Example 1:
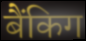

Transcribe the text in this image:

बैंकिग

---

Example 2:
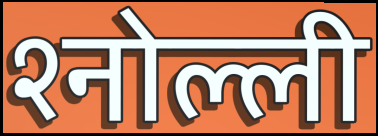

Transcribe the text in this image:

श्नोल्ली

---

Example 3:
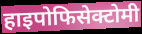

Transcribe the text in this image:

हाइपोफिसेक्टोमी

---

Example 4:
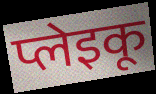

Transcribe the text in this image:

प्लेइकू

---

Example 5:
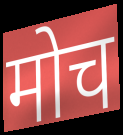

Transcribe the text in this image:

मोच